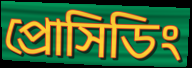
প্রোসিডিং